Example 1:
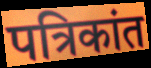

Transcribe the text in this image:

पत्रिकांत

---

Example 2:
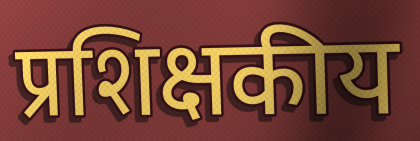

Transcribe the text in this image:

प्रशिक्षकीय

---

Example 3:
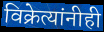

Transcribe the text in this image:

विक्रेत्यांनीही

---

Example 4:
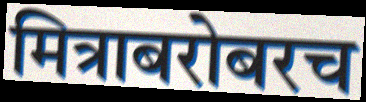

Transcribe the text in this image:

मित्राबरोबरच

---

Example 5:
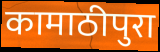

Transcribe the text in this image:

कामाठीपुरा